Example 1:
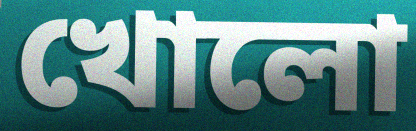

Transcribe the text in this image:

খোলো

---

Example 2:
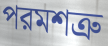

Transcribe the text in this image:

পরমশত্রু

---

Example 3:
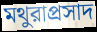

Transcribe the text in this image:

মথুরাপ্রসাদ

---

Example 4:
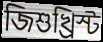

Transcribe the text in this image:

জিশুখ্রিস্ট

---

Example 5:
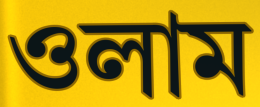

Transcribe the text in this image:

ওলাম